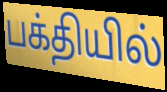
பக்தியில்